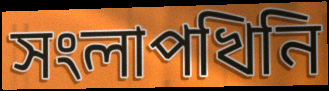
সংলাপখিনি